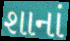
શાનાં